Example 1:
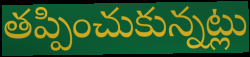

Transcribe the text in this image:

తప్పించుకున్నట్లు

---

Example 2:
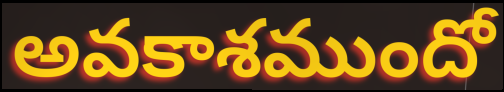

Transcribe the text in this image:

అవకాశముందో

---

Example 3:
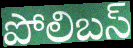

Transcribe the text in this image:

పోలిబస్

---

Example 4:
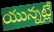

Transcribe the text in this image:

యున్నట్లే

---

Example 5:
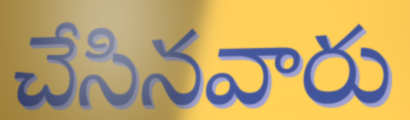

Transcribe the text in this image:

చేసినవారు